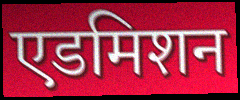
एडमिशन